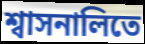
শ্বাসনালিতে